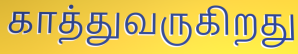
காத்துவருகிறது